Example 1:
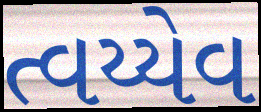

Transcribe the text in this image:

ત્વય્યેવ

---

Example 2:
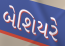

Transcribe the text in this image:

બેશિયરે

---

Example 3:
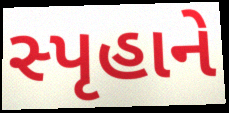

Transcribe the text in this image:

સ્પૃહાને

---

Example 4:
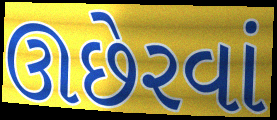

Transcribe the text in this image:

ઊછેરવાં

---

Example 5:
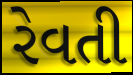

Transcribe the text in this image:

રેવતી